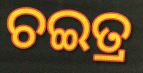
ଚଇତ୍ର